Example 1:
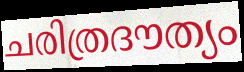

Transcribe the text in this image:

ചരിത്രദൗത്യം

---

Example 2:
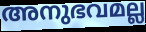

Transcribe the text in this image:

അനുഭവമല്ല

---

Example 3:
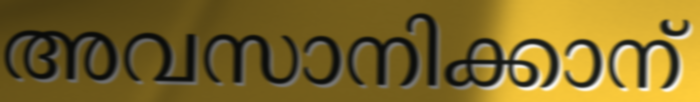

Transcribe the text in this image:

അവസാനിക്കാന്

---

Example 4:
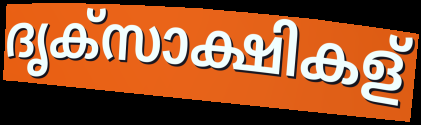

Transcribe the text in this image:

ദൃക്സാക്ഷികള്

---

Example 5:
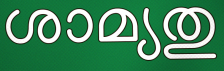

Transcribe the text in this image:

ശാമ്യതു